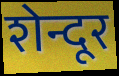
शेन्दूर